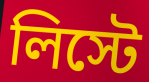
লিস্টে